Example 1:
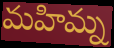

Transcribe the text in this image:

మహిమ్న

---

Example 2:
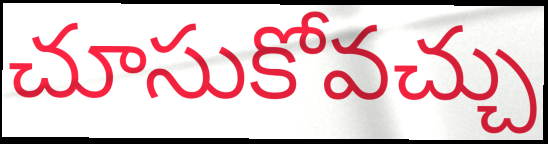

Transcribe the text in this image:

చూసుకోవచ్చు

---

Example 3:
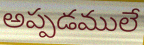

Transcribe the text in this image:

అప్పడములే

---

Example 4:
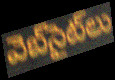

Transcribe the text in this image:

వెబ్‌సైట్‌లు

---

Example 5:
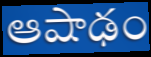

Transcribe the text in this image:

ఆషాఢం